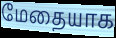
மேதையாக